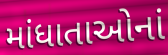
માંધાતાઓનાં